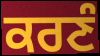
ਕਰਣੰ